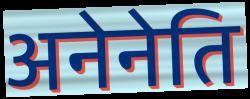
अनेनेति